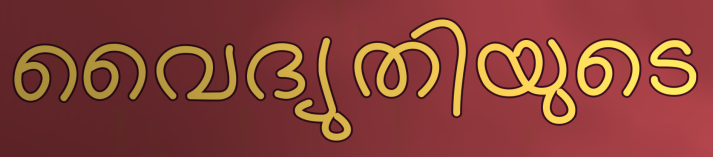
വൈദ്യുതിയുടെ